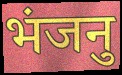
भंजनु